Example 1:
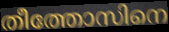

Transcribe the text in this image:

തീത്തോസിനെ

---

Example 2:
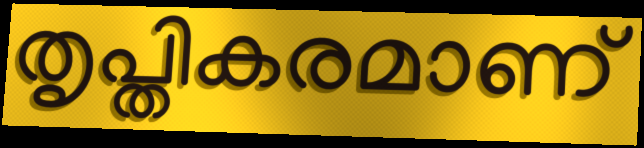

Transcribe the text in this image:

തൃപ്തികരമാണ്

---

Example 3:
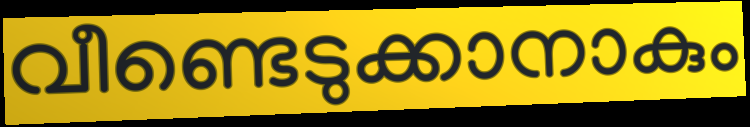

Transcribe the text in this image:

വീണ്ടെടുക്കാനാകും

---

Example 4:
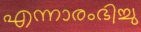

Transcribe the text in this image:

എന്നാരംഭിച്ചു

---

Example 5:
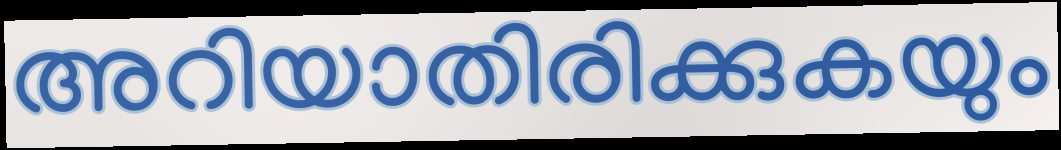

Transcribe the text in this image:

അറിയാതിരിക്കുകയും